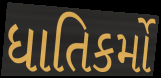
ધાતિકર્મો